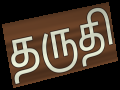
தருதி